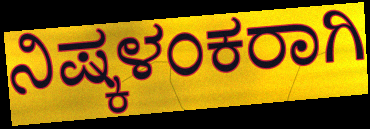
ನಿಷ್ಕಳಂಕರಾಗಿ